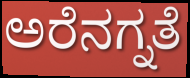
ಅರೆನಗ್ನತೆ